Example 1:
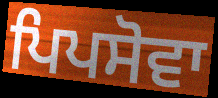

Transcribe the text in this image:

ਪਿਪਸੋਵਾ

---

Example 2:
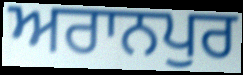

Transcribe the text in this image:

ਅਰਾਨਪੁਰ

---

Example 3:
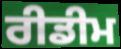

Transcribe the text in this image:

ਰੀਡੀਮ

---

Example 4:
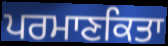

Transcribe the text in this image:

ਪਰਮਾਣਕਿਤਾ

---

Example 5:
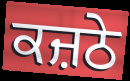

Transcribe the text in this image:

ਕਜ਼ਠੇ